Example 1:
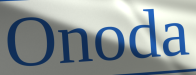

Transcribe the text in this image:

Onoda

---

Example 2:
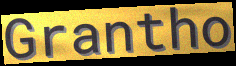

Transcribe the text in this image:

Grantho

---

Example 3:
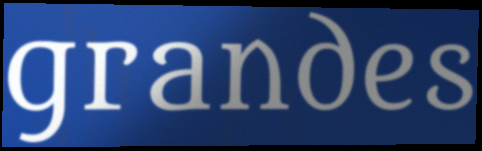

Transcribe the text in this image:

grandes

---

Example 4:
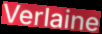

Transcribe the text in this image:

Verlaine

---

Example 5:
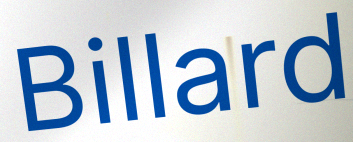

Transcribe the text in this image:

Billard